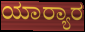
ಯಾರ‍್ಯಾರ